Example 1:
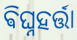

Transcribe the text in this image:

ଵିଘ୍ନହର୍ତ୍ତା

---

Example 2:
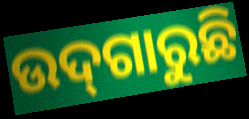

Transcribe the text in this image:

ଉଦ୍‌ଗାରୁଛି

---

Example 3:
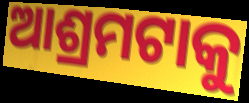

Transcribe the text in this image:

ଆଶ୍ରମଟାକୁ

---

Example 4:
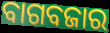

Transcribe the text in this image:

ବାଗବଜାର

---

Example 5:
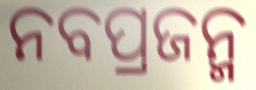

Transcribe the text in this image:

ନବପ୍ରଜନ୍ମ